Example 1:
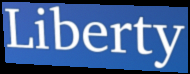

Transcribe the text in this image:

Liberty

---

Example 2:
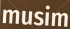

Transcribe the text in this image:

musim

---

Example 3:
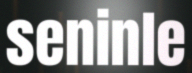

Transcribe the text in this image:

seninle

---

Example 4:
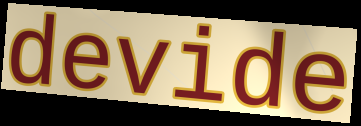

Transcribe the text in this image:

devide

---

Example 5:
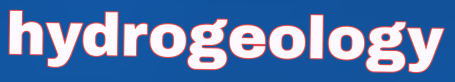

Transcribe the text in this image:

hydrogeology